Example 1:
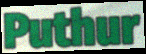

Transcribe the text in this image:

Puthur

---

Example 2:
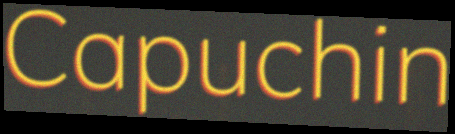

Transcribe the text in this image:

Capuchin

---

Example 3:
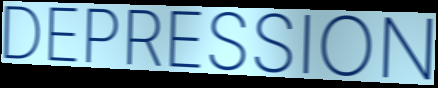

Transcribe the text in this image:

DEPRESSION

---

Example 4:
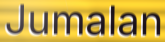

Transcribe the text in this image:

Jumalan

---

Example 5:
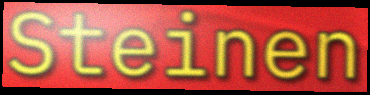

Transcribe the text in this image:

Steinen